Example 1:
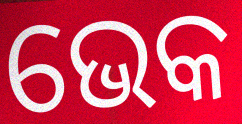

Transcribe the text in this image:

ଭେକ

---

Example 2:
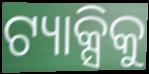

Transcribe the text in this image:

ଟ୍ୟାକ୍ସିକୁ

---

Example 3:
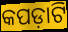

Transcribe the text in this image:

କପଡ଼ାଟି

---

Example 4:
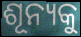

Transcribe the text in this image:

ଶୂନ୍ୟକୁ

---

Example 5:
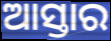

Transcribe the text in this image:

ଆସ୍ତାର